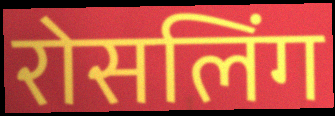
रोसलिंग